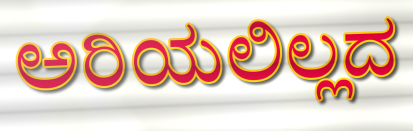
ಅರಿಯಲಿಲ್ಲದ